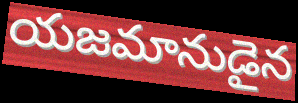
యజమానుడైన